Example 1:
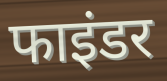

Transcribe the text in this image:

फाइंडर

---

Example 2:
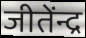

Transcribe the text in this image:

जीतेंन्द्र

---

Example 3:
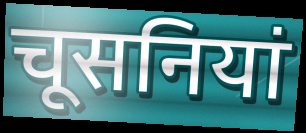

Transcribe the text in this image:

चूसनियां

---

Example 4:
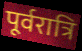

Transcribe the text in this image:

पूर्वरात्रि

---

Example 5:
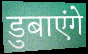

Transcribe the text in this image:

डुबाएंगे